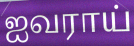
ஐவராய்